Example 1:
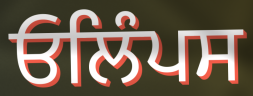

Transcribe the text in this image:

ਓਲਿੰਪਸ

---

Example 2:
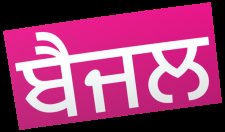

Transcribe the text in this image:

ਬੈਜਲ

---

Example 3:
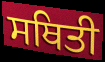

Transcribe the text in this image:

ਸਥਿਤੀ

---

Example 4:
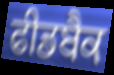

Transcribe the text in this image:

ਫੀਡਬੈਕ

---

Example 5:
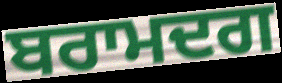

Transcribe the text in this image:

ਬਰਾਮਦਗ